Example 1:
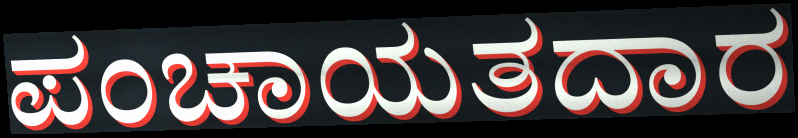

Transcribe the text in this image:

ಪಂಚಾಯತದಾರ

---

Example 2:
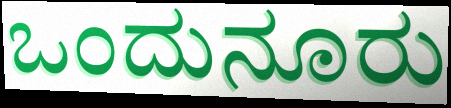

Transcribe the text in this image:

ಒಂದುನೂರು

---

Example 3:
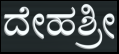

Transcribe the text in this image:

ದೇಹಶ್ರೀ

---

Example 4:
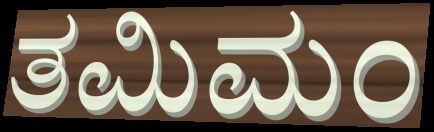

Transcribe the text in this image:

ತಮಿಮಂ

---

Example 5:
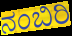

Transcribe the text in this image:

ನಂಬಿರಿ